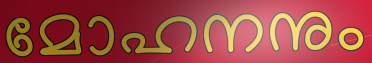
മോഹനനും